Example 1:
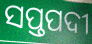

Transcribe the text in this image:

ସପ୍ତପଦୀ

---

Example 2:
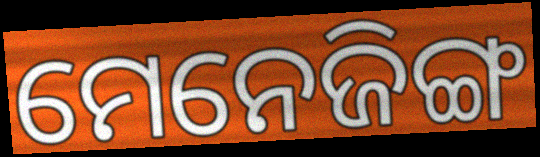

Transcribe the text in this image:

ମେନେଜିଙ୍ଗ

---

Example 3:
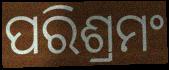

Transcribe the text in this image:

ପରିଶ୍ରମଂ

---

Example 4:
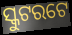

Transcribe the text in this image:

ସ୍କୁଟରଟେ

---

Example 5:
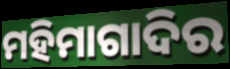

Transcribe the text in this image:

ମହିମାଗାଦିର